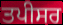
ਤਪੀਸਰ